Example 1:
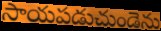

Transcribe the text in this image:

సాయపడుచుండెను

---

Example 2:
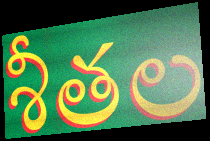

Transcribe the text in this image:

శీతల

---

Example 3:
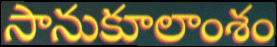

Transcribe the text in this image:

సానుకూలాంశం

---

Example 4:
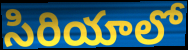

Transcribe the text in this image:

సిరియాలో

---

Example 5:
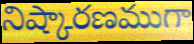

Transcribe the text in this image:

నిష్కారణముగా